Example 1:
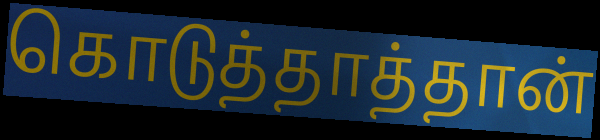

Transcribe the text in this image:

கொடுத்தாத்தான்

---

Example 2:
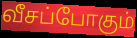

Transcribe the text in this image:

வீசப்போகும்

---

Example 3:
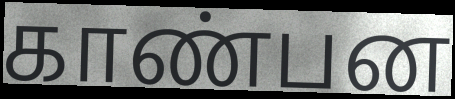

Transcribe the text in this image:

காண்பன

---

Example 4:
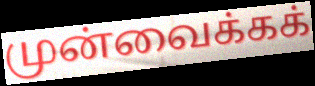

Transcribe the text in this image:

முன்வைக்கக்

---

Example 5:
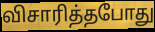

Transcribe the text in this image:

விசாரித்தபோது